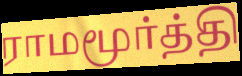
ராமமூர்த்தி